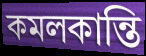
কমলকান্তি